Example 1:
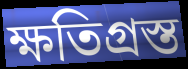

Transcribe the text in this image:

ক্ষতিগ্রস্ত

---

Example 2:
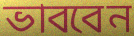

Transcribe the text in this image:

ভাববেন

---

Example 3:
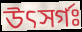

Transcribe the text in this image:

উৎসর্গঃ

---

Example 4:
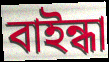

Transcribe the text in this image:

বাইন্ধা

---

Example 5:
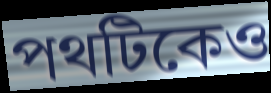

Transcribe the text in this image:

পথটিকেও